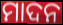
ମାଦନ